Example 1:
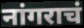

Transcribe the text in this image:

नांगराचं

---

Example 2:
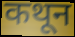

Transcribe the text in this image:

कथून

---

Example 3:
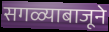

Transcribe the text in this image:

सगळ्याबाजूने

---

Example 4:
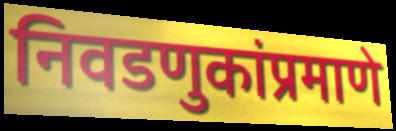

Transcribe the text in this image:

निवडणुकांप्रमाणे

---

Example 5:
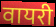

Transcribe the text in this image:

वायरी